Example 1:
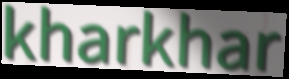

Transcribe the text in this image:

kharkhar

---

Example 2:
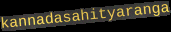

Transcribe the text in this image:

kannadasahityaranga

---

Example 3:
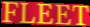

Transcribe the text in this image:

FLEET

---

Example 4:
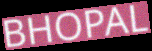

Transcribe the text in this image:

BHOPAL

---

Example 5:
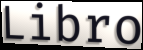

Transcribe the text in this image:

Libro